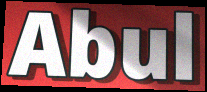
Abul